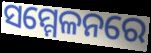
ସମ୍ମେଳନରେ